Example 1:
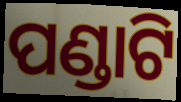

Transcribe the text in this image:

ପଣ୍ଡାଟି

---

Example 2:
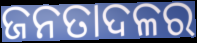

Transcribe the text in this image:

ଜନତାଦଳର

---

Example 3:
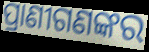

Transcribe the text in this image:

ପ୍ରାଣୀଗଣଙ୍କର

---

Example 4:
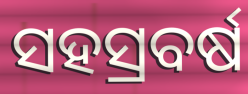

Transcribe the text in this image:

ସହସ୍ରବର୍ଷ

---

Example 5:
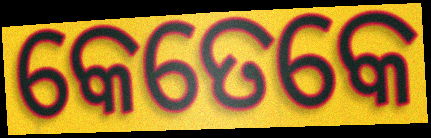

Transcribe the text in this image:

କେତେକେ